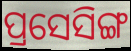
ପ୍ରସେସିଙ୍ଗ